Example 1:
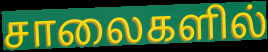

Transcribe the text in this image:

சாலைகளில்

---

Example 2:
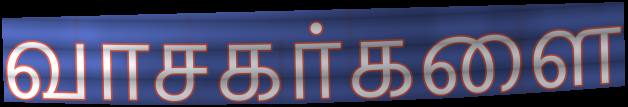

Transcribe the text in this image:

வாசகர்களை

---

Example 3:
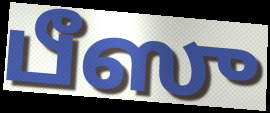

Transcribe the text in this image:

பீஸு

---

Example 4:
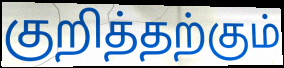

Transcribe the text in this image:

குறித்தற்கும்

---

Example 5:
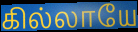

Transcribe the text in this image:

கில்லாயே